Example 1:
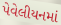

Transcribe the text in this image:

પેવેલીયનમાં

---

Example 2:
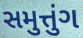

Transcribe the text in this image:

સમુત્તુંગ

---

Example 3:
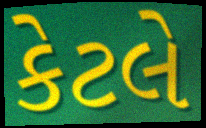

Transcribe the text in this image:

કેટલે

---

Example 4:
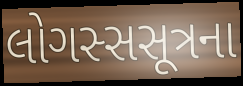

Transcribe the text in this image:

લોગસ્સસૂત્રના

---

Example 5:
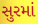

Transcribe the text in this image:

સુરમાં